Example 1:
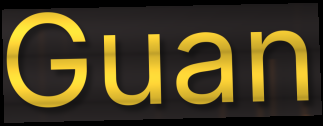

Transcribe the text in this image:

Guan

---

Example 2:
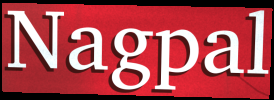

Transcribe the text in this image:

Nagpal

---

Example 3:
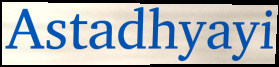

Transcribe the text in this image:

Astadhyayi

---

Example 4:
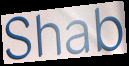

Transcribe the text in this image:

Shab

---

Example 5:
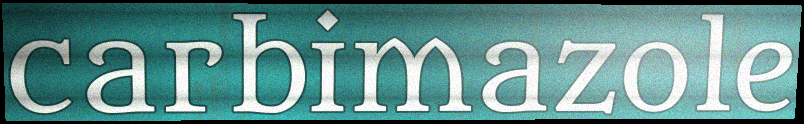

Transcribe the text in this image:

carbimazole